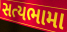
સત્યભામા